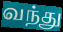
வந்து